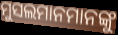
ମୁସଲମାନମାନଙ୍କୁ